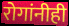
रोगांनीही